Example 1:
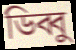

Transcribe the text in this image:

ডিব্বু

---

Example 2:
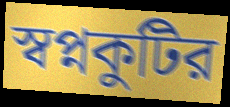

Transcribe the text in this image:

স্বপ্নকুটির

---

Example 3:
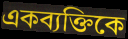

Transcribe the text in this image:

একব্যক্তিকে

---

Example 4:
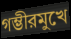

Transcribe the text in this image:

গম্ভীরমুখে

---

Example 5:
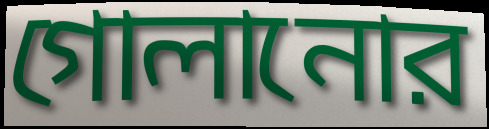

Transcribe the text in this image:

গোলানোর